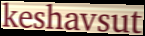
keshavsut